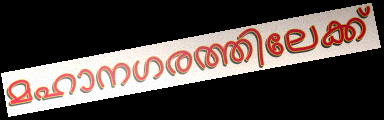
മഹാനഗരത്തിലേക്ക്